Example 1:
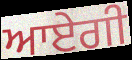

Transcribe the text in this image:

ਆਏਗੀ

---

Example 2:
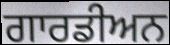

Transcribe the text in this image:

ਗਾਰਡੀਅਨ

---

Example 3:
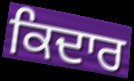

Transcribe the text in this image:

ਕਿਦਾਰ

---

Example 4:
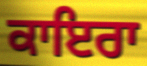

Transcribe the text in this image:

ਕਾਇਰਾ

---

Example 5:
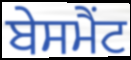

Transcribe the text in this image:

ਬੇਸਮੈਂਟ